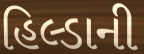
હિલ્ડાની